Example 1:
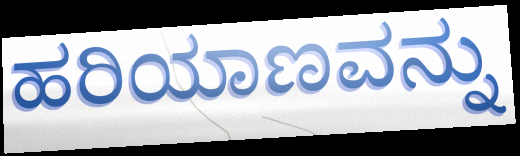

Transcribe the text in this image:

ಹರಿಯಾಣವನ್ನು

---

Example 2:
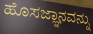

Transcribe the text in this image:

ಹೊಸಜ್ಞಾನವನ್ನು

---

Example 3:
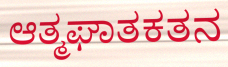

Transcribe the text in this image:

ಆತ್ಮಘಾತಕತನ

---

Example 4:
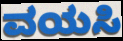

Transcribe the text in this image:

ವಯಸಿ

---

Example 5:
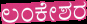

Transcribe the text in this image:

ಲಂಕೇಶರ